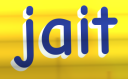
jait